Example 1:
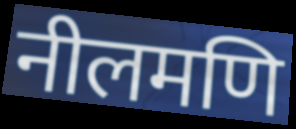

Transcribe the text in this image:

नीलमणि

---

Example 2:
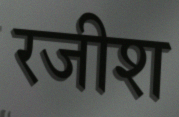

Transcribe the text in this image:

रजीश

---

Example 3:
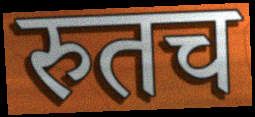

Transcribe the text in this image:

रुतच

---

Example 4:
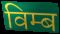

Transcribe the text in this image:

विम्ब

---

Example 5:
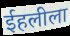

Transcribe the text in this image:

ईहलीला